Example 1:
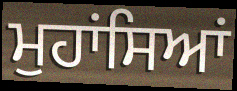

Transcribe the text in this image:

ਮੁਹਾਂਸਿਆਂ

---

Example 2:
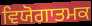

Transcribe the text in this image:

ਵਿਯੋਗਾਤਮਕ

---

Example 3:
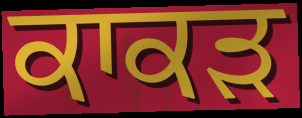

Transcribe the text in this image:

ਕਾਕੜ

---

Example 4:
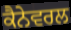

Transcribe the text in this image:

ਕੈਨੇਵਰਲ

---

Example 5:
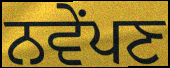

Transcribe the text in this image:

ਨਵੇਂਪਣ